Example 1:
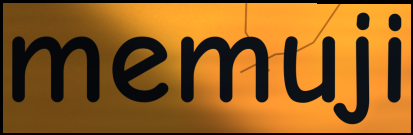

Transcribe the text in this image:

memuji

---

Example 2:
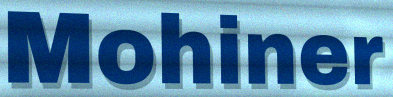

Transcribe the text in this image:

Mohiner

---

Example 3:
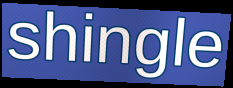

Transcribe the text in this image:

shingle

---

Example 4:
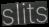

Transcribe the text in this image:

slits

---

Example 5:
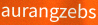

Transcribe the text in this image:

aurangzebs